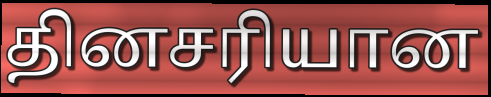
தினசரியான